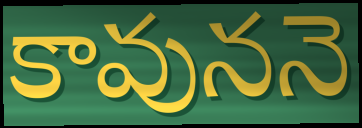
కావుననె